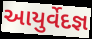
આયુર્વેદજ્ઞ